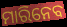
ମାରିନେବ